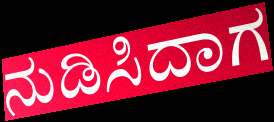
ನುಡಿಸಿದಾಗ